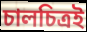
চালচিত্রই